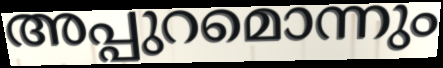
അപ്പുറമൊന്നും